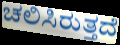
ಚಲಿಸಿರುತ್ತದೆ